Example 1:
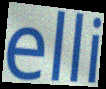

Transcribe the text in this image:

elli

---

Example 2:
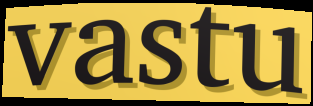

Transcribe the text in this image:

vastu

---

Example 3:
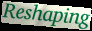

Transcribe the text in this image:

Reshaping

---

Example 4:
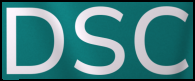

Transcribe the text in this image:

DSC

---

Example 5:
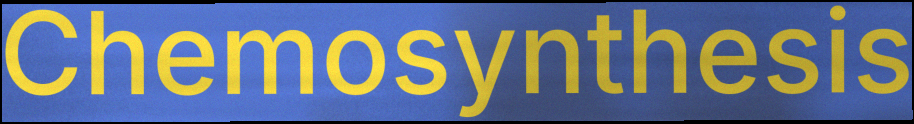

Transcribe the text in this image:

Chemosynthesis